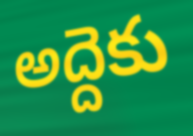
అద్దెకు